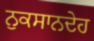
ਨੁਕਸਾਨਦੇਹ